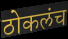
ठोकलंच